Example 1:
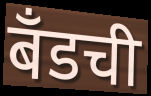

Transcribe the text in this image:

बँडची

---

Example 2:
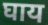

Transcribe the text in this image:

घाय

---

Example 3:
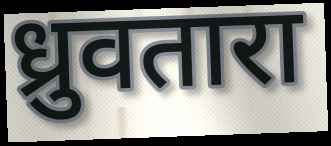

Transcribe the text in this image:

ध्रुवतारा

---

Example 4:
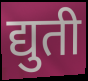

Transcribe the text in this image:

द्युती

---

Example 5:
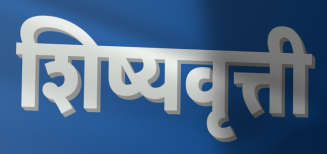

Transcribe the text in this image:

शिष्यवृत्ती